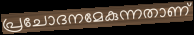
പ്രചോദനമേകുന്നതാണ്